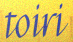
toiri